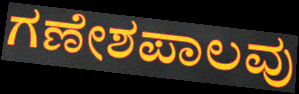
ಗಣೇಶಪಾಲವು